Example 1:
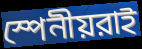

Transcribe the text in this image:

স্পেনীয়রাই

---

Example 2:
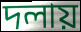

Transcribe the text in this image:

দলায়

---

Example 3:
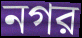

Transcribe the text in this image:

নগর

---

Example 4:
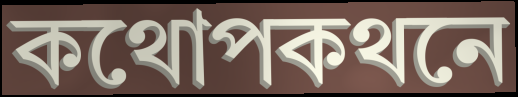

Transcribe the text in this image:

কথোপকথনে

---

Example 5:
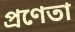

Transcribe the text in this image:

প্রণেতা